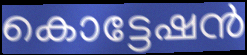
കൊട്ടേഷൻ